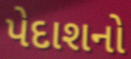
પેદાશનો